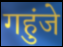
गहुंजे